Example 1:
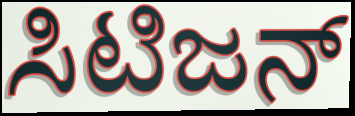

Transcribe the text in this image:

ಸಿಟಿಜನ್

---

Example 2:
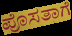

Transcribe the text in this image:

ಪೊಸತಾಗೆ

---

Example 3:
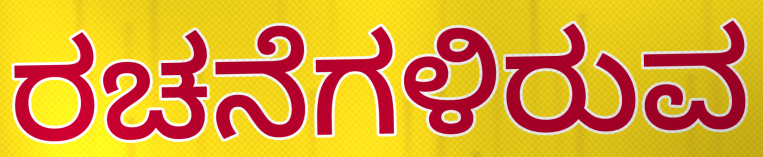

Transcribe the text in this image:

ರಚನೆಗಳಿರುವ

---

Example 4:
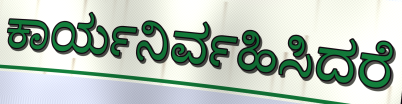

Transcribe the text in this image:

ಕಾರ್ಯನಿರ್ವಹಿಸಿದರೆ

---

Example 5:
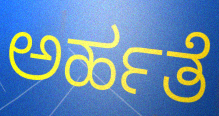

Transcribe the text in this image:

ಅರ್ಹತೆ